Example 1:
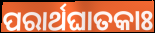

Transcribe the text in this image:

ପରାର୍ଥଘାତକାଃ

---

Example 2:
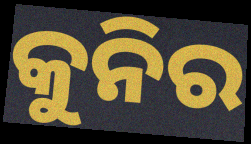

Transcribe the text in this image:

କୁନିର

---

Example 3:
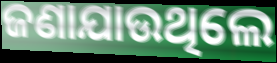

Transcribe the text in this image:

ଜଣାଯାଉଥିଲେ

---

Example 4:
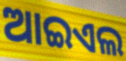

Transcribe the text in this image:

ଆଇଏଲ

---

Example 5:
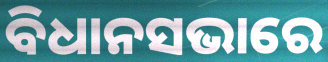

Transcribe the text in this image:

ବିଧାନସଭାରେ